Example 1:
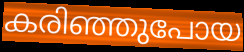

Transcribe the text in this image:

കരിഞ്ഞുപോയ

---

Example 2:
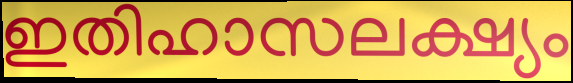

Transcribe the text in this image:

ഇതിഹാസലക്ഷ്യം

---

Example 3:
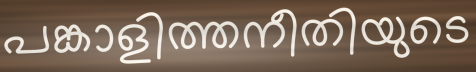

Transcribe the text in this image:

പങ്കാളിത്തനീതിയുടെ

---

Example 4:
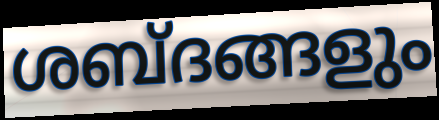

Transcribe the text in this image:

ശബ്ദങ്ങളും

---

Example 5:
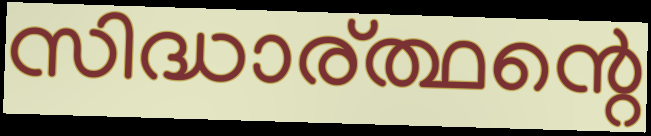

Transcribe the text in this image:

സിദ്ധാര്ത്ഥന്റെ